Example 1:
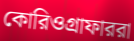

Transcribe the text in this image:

কোরিওগ্রাফাররা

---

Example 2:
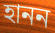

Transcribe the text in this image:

হানন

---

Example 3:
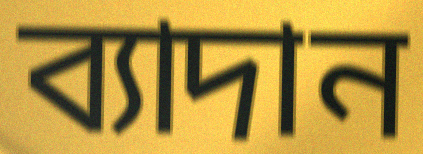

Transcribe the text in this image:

ব্যাদান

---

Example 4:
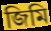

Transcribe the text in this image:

জিমি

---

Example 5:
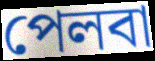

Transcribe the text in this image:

পেলবা